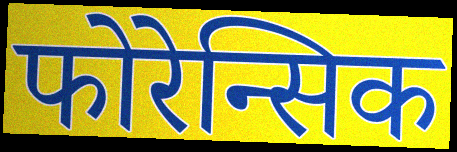
फोरेन्सिक